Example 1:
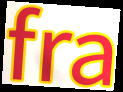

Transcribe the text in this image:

fra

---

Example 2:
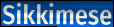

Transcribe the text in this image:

Sikkimese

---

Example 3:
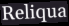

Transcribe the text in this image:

Reliqua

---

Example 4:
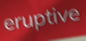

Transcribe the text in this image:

eruptive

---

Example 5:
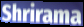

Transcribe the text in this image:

Shrirama